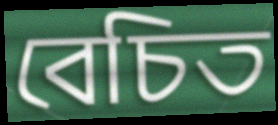
বেচিত